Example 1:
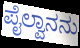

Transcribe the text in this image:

ಪೈಲ್ವಾನನು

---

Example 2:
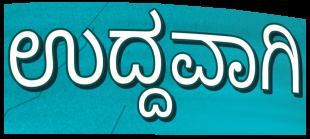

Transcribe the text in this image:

ಉದ್ದವಾಗಿ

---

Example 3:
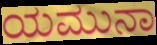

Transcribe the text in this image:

ಯಮುನಾ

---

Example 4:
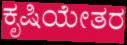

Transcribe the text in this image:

ಕೃಷಿಯೇತರ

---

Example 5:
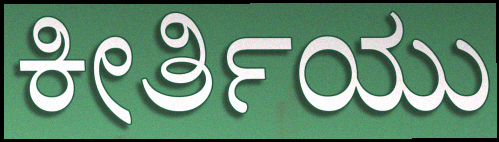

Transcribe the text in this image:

ಕೀರ್ತಿಯು